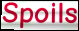
Spoils